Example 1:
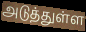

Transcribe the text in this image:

அடுத்துள்ள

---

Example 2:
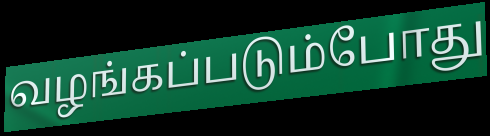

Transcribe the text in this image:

வழங்கப்படும்போது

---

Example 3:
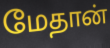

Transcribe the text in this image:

மேதான்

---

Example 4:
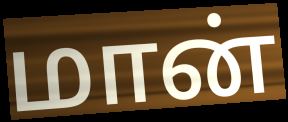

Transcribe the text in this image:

மான்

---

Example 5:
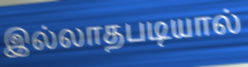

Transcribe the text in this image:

இல்லாதபடியால்